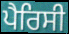
ਪੈਰਿਸੀ